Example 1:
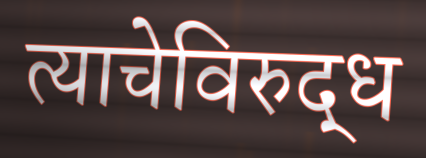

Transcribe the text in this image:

त्याचेविरुद्ध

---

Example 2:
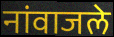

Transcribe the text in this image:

नांवाजले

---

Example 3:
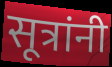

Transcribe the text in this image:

सूत्रांनी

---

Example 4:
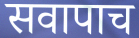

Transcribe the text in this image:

सवापाच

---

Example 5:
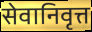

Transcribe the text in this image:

सेवानिवृत्त